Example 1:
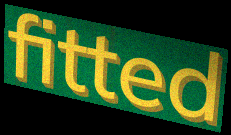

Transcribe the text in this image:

fitted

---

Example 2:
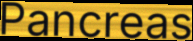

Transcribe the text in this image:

Pancreas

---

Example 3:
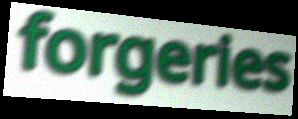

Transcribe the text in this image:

forgeries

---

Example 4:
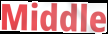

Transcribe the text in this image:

Middle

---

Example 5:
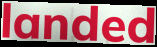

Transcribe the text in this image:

landed